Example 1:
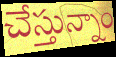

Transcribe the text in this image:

చేస్తున్నాం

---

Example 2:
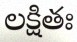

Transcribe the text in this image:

లక్షితః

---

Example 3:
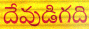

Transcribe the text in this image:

దేవుడిగది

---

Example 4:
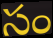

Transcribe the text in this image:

సం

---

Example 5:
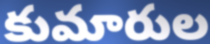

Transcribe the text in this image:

కుమారుల